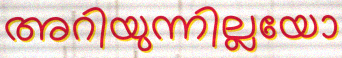
അറിയുന്നില്ലയോ